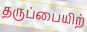
தருப்பையிற்